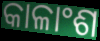
କାଳାଂଶ